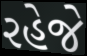
રહેજે